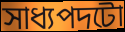
সাধ্যপদটো